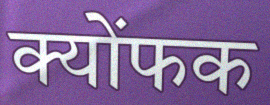
क्योंफक